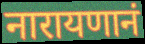
नारायणानं